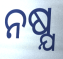
ନଷ୍ଯ